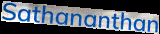
Sathananthan